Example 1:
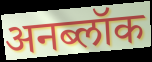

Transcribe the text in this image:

अनब्लॉक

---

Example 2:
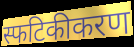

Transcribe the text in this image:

स्फटिकीकरण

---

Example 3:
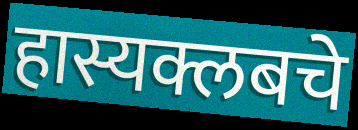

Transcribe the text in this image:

हास्यक्लबचे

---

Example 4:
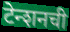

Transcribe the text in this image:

टेन्शनची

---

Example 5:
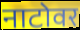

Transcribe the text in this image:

नाटोवर